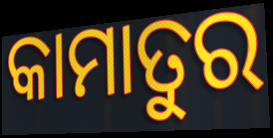
କାମାତୁର